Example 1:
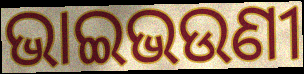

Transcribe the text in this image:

ଭାଇଭଉଣୀ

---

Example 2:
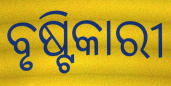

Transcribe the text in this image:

ବୃଷ୍ଟିକାରୀ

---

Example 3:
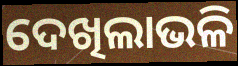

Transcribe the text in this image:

ଦେଖିଲାଭଳି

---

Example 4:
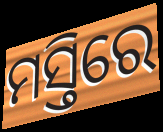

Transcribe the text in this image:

ମସ୍ତିରେ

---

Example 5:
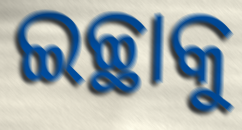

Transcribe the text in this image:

ଇଚ୍ଛାକୁ